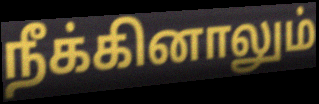
நீக்கினாலும்